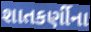
શાતકર્ણીના